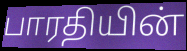
பாரதியின்